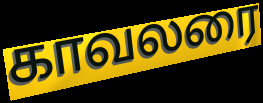
காவலரை